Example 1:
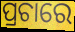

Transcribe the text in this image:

ପ୍ରଚାରେ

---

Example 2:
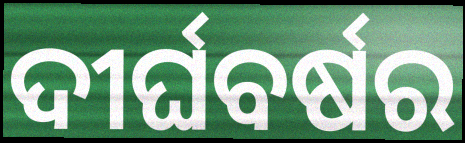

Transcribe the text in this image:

ଦୀର୍ଘବର୍ଷର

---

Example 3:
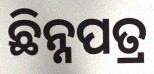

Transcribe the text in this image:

ଛିନ୍ନପତ୍ର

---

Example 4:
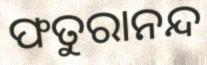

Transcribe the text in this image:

ଫତୁରାନନ୍ଦ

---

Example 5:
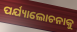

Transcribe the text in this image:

ପର୍ଯ୍ୟାଲୋଚନାକୁ